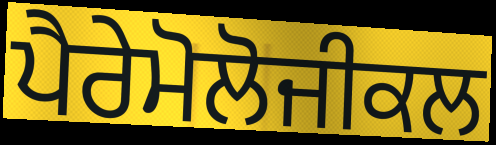
ਪੈਰੇਮੋਲੋਜੀਕਲ